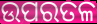
ଉପରତଳ